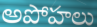
అపోహలు